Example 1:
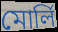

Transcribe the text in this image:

মোর্লি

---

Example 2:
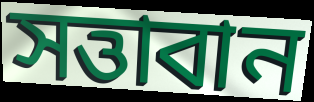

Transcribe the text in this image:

সত্তাবান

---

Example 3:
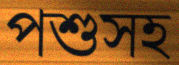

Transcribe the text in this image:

পশুসহ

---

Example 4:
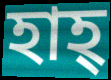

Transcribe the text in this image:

হাহ্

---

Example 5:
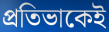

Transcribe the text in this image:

প্রতিভাকেই